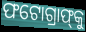
ଫଟୋଗ୍ରାଫ୍‌କୁ